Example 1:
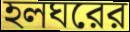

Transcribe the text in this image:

হলঘরের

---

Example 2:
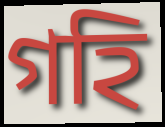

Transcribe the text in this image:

গহি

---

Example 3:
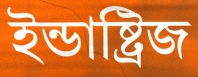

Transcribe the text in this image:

ইন্ডাষ্ট্রিজ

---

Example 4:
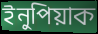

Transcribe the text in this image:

ইনুপিয়াক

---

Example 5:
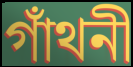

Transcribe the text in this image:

গাঁথনী